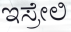
ಇಸ್ರೇಲಿ